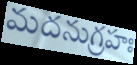
మదనుగ్రహః